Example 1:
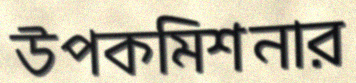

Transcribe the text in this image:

উপকমিশনার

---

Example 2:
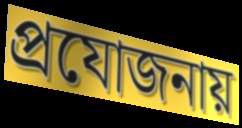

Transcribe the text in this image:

প্রযোজনায়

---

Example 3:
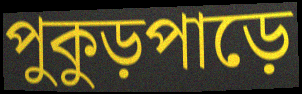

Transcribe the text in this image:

পুকুড়পাড়ে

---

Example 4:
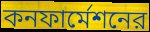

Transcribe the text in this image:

কনফার্মেশনের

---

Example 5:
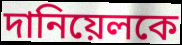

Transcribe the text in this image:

দানিয়েলকে